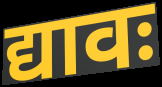
द्यावः